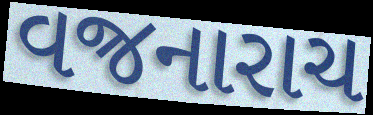
વજ્રનારાચ